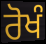
ਰੋਖੰ